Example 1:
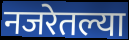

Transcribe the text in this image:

नजरेतल्या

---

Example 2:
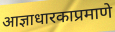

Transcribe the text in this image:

आज्ञाधारकाप्रमाणे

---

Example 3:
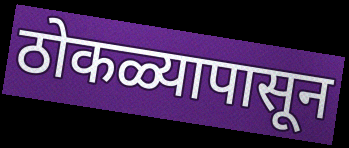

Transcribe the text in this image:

ठोकळ्यापासून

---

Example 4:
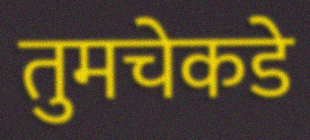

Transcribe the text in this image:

तुमचेकडे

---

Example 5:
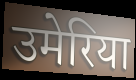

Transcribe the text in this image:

उमेरिया